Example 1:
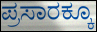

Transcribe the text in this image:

ಪ್ರಸಾರಕ್ಕೂ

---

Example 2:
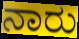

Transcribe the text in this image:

ನಾರು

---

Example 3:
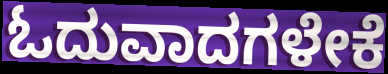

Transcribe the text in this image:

ಓದುವಾದಗಳೇಕೆ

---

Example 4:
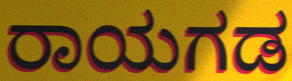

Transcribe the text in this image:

ರಾಯಗಡ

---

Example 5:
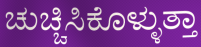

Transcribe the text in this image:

ಚುಚ್ಚಿಸಿಕೊಳ್ಳುತ್ತಾ